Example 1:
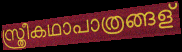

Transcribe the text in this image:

സ്ത്രീകഥാപാത്രങ്ങള്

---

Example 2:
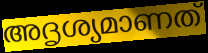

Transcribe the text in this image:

അദൃശ്യമാണത്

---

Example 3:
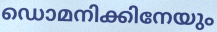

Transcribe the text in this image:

ഡൊമനിക്കിനേയും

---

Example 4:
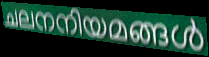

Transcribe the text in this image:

ചലനനിയമങ്ങൾ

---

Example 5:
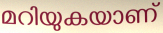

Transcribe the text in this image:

മറിയുകയാണ്